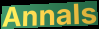
Annals